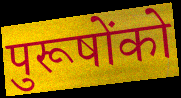
पुरूषोंको